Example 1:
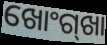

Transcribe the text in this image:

ଖୋଂଗ୍‍ଖା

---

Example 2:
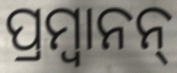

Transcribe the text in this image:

ପ୍ରମ୍ବାନନ୍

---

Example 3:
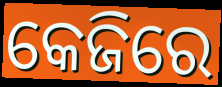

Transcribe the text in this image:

କେଜିରେ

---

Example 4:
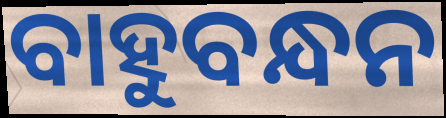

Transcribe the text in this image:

ବାହୁବନ୍ଧନ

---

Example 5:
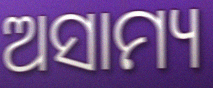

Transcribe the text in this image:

ଅସାମ୍ୟ